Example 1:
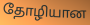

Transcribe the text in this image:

தோழியான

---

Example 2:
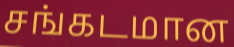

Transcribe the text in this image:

சங்கடமான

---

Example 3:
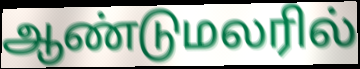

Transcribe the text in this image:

ஆண்டுமலரில்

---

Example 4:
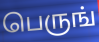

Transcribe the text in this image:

பெருங்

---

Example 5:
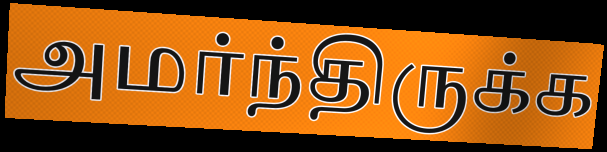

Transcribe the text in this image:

அமர்ந்திருக்க